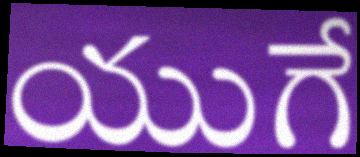
యుగే